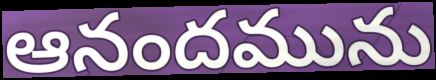
ఆనందమును